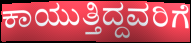
ಕಾಯುತ್ತಿದ್ದವರಿಗೆ